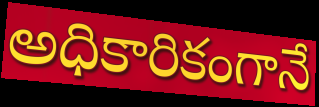
అధికారికంగానే